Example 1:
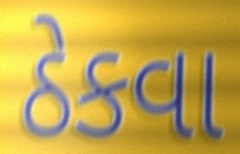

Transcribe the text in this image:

ઠેકવા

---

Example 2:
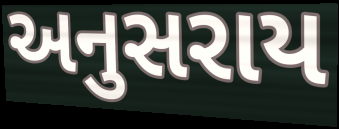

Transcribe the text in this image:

અનુસરાય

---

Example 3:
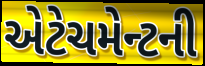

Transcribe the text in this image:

એટેચમેન્ટની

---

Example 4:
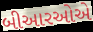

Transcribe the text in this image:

બીઆરઓએ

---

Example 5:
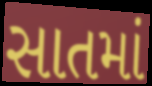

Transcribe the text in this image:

સાતમાં